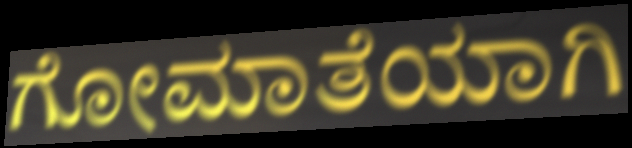
ಗೋಮಾತೆಯಾಗಿ